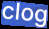
clog